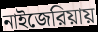
নাইজেরিয়ায়